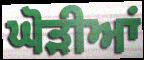
ਘੋੜੀਆਂ